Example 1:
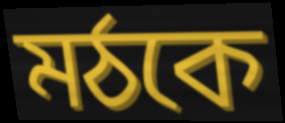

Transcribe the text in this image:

মঠকে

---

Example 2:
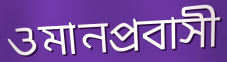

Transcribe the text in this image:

ওমানপ্রবাসী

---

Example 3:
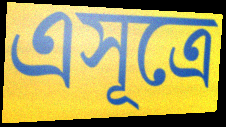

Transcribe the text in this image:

এসূত্রে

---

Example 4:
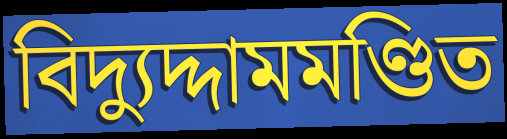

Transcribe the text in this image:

বিদ্যুদ্দামমণ্ডিত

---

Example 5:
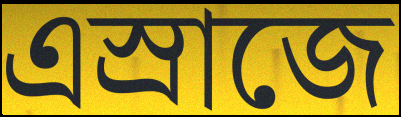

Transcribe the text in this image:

এস্রাজে